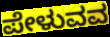
ಪೇಳುವವ